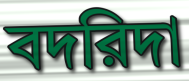
বদরিদা